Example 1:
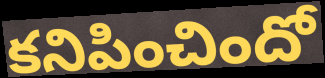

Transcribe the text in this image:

కనిపించిందో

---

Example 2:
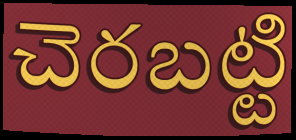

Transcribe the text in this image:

చెరబట్టి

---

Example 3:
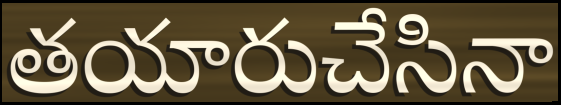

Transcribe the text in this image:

తయారుచేసినా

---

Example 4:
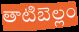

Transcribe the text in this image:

తాటిబెల్లం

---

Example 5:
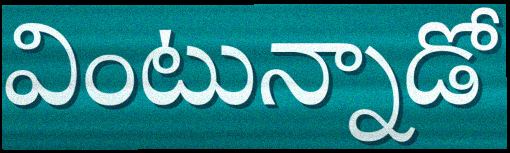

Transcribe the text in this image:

వింటున్నాడో